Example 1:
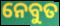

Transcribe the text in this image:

ନେବୁତ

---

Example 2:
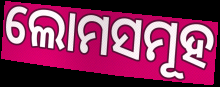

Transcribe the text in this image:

ଲୋମସମୂହ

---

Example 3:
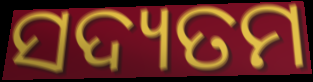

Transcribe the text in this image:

ସଦ୍ୟତମ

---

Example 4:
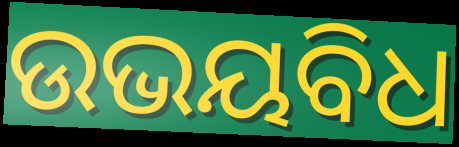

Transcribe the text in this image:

ଉଭୟବିଧ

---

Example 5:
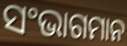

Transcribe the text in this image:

ସଂଭାଗମାନ